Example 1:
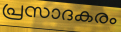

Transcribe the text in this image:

പ്രസാദകരം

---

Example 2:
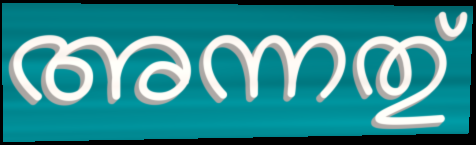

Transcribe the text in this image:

അന്നതു്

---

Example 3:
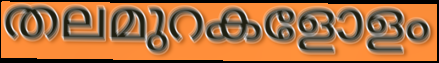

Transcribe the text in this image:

തലമുറകളോളം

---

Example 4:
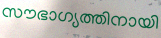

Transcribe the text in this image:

സൗഭാഗ്യത്തിനായി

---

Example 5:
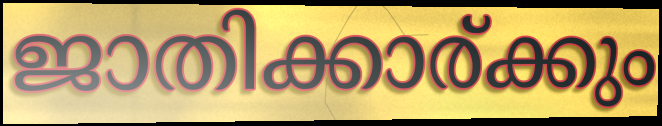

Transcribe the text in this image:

ജാതിക്കാര്ക്കും